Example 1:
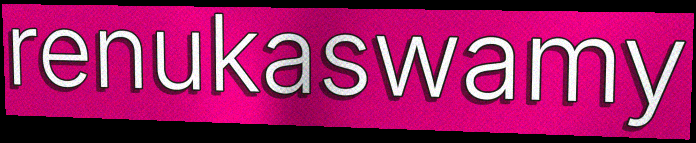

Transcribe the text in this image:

renukaswamy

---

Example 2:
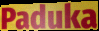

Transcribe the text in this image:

Paduka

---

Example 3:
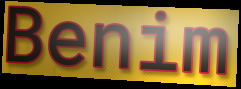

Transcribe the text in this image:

Benim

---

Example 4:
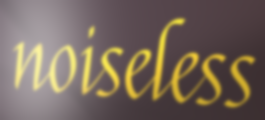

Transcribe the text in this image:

noiseless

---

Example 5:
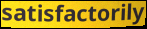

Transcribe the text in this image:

satisfactorily